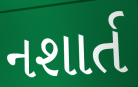
નશાર્ત